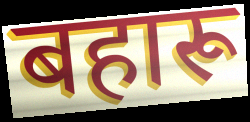
बहारू